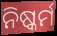
ନିଷ୍କର୍ମ